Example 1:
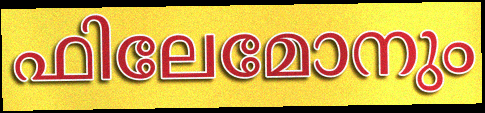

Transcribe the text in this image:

ഫിലേമോനും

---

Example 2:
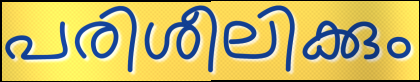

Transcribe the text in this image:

പരിശീലിക്കും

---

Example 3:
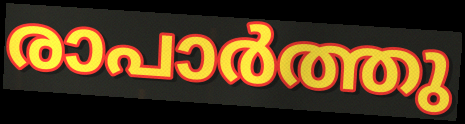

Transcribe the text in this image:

രാപാർത്തു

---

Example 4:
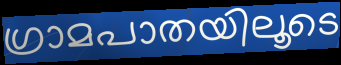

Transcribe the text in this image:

ഗ്രാമപാതയിലൂടെ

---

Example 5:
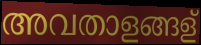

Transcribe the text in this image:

അവതാളങ്ങള്